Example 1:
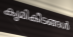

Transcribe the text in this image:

കൃമികീടങ്ങൾ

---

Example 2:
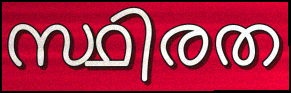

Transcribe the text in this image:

സ്ഥിരത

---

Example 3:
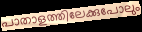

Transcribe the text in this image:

പാതാളത്തിലേക്കുപോലും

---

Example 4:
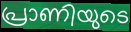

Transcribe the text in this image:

പ്രാണിയുടെ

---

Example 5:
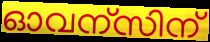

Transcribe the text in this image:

ഓവന്സിന്